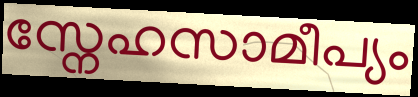
സ്നേഹസാമീപ്യം